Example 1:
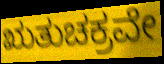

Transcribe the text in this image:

ಋತುಚಕ್ರವೇ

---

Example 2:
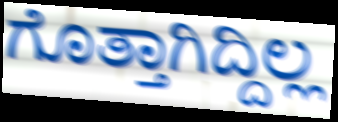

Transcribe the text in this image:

ಗೊತ್ತಾಗಿದ್ದಿಲ್ಲ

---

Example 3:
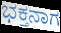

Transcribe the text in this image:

ಭಕ್ತನಾಗ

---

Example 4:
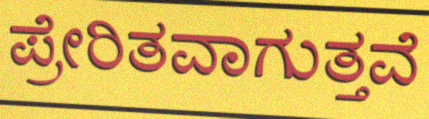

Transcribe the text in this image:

ಪ್ರೇರಿತವಾಗುತ್ತವೆ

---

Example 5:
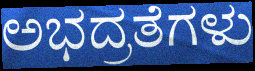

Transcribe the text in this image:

ಅಭದ್ರತೆಗಳು